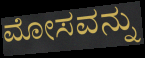
ಮೋಸವನ್ನು